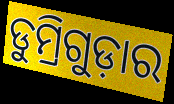
ଡୁମ୍ରିଗୁଡ଼ାର